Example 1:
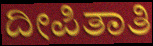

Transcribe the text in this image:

ದೀಪಿತಾತಿ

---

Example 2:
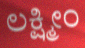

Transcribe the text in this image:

ಲಕ್ಷ್ಮೀಂ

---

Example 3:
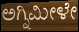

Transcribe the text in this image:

ಅಗ್ನಿಮೀಳೇ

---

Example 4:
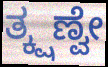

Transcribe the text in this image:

ತ್ಕ್ಷಣ್ವೇ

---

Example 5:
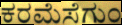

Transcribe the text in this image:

ಕರಮೆಸೆಗುಂ